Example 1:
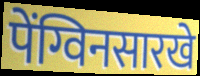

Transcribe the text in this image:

पेंग्विनसारखे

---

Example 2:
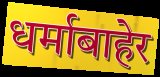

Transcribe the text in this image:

धर्माबाहेर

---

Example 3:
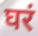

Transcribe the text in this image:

घरं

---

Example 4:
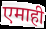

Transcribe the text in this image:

एमाही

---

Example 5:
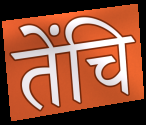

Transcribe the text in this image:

तेंचि